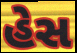
હેસ